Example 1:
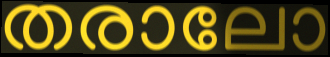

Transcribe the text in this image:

തരാലോ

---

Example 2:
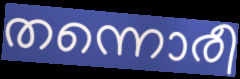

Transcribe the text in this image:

തന്നൊരീ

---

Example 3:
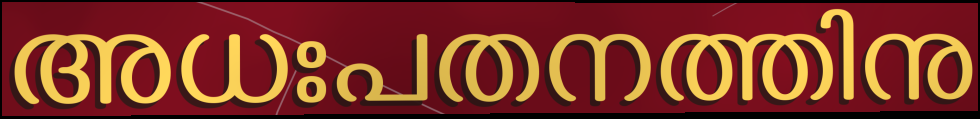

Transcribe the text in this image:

അധഃപതനത്തിനു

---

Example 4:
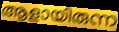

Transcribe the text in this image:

ആളായിരുന്ന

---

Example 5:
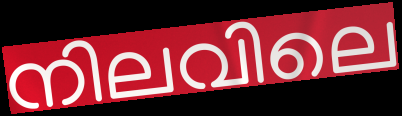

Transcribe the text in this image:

നിലവിലെ